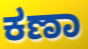
ಕಣಾ